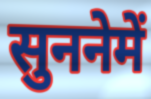
सुननेमें